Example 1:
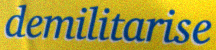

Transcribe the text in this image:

demilitarise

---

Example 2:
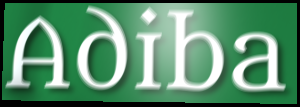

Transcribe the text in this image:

Adiba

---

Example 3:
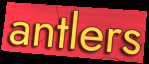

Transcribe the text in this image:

antlers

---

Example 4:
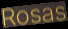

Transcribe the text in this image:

Rosas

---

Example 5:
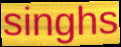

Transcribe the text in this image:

singhs